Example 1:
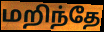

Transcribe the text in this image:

மறிந்தே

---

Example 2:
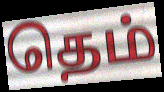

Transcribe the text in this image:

தெம்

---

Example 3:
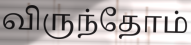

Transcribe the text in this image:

விருந்தோம்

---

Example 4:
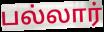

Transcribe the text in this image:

பல்லார்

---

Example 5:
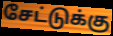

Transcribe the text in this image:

சேட்டுக்கு